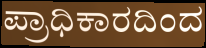
ಪ್ರಾಧಿಕಾರದಿಂದ